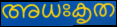
അധഃകൃത